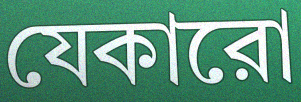
যেকারো